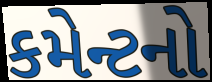
કમેન્ટનો